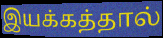
இயக்கத்தால்